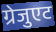
ग्रेजुएट